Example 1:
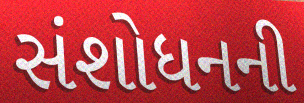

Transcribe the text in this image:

સંશોધનની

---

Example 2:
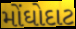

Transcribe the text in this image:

મોંઘોદાટ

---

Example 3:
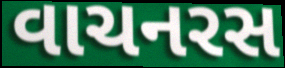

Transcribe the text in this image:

વાચનરસ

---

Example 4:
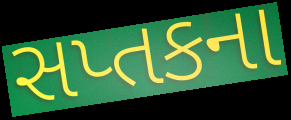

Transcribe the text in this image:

સપ્તકના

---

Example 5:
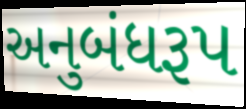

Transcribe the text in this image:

અનુબંધરૂપ